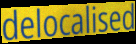
delocalised